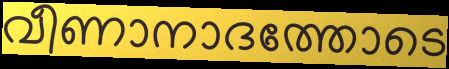
വീണാനാദത്തോടെ